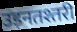
उड़नतश्तरी